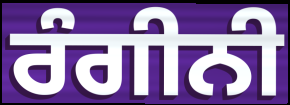
ਰੰਗੀਨੀ